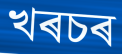
খৰচৰ